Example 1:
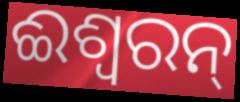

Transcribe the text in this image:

ଈଶ୍ୱରନ୍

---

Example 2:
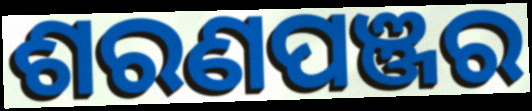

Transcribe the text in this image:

ଶରଣପଞ୍ଜର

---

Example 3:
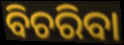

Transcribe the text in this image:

ବିଚରିବା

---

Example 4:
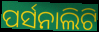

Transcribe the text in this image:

ପର୍ସନାଲିଟି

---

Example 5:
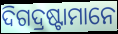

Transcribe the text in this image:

ଦିଗଦ୍ରଷ୍ଟାମାନେ